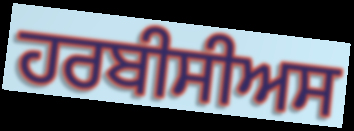
ਹਰਬੀਸੀਅਸ